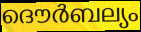
ദൌർബല്യം